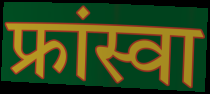
फ्रांस्वा